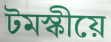
টমস্কীয়ে